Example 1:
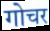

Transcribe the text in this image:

गोचर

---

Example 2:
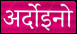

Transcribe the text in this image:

अर्दोइनो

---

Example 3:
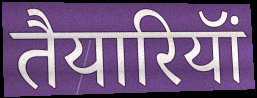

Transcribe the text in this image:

तैयारियॉं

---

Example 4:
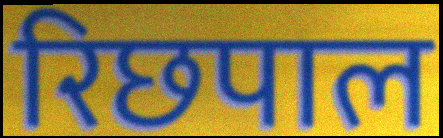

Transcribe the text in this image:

रिछपाल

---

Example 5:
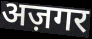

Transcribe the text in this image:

अज़गर